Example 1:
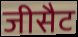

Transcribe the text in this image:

जीसैट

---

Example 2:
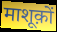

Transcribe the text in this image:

माशूक़ों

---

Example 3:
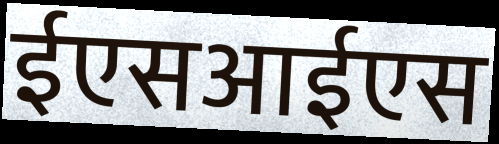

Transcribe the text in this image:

ईएसआईएस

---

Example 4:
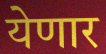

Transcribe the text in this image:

येणार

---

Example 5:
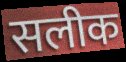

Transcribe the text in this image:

सलीक